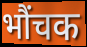
भौंचक